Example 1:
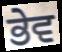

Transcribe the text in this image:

ਭੇਵ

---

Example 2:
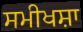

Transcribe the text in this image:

ਸਮੀਖਸ਼ਾ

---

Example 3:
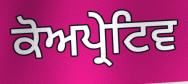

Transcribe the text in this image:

ਕੋਅਪ੍ਰੇਟਿਵ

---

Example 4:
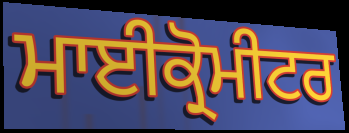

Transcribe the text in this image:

ਮਾਈਕ੍ਰੋਮੀਟਰ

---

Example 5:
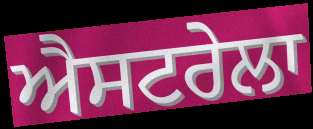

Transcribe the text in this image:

ਐਸਟਰੇਲਾ